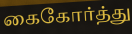
கைகோர்த்து